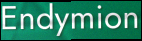
Endymion